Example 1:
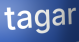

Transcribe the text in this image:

tagar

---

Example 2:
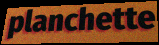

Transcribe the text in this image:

planchette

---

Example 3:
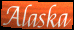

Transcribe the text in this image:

Alaska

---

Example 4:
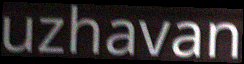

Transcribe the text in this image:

uzhavan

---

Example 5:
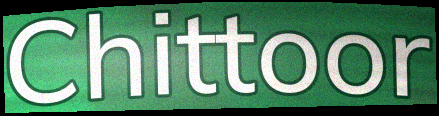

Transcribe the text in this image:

Chittoor